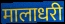
मालाधरी